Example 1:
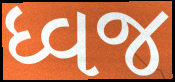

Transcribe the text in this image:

ધ્વજ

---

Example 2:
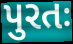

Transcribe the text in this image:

પુરતઃ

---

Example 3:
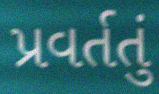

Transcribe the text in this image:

પ્રવર્તતું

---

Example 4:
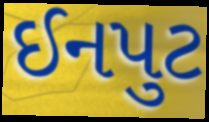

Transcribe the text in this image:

ઈનપુટ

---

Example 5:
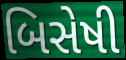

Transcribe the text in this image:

બિસેષી